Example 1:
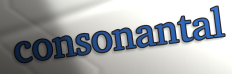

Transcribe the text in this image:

consonantal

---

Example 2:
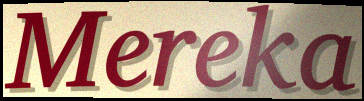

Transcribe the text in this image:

Mereka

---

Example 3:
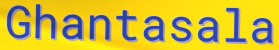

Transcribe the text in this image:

Ghantasala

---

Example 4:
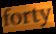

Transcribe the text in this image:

forty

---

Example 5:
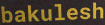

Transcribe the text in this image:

bakulesh